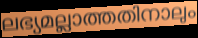
ലഭ്യമല്ലാത്തതിനാലും